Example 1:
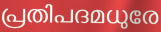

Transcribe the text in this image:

പ്രതിപദമധുരേ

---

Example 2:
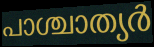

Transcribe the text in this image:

പാശ്ചാത്യർ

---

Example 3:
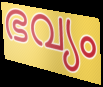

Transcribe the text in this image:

ഭവ്യം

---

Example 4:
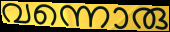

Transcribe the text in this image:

വന്നൊരു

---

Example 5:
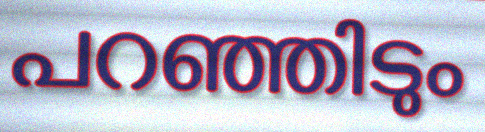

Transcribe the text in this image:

പറഞ്ഞിടും